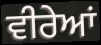
ਵੀਰੇਆਂ